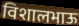
विशालभाऊ